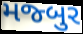
મજ્બુર